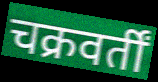
चक्रवर्तीं